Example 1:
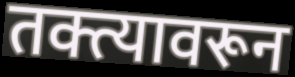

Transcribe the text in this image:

तक्त्यावरून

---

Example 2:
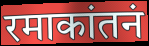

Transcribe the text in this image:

रमाकांतनं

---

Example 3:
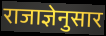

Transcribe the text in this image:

राजाज्ञेनुसार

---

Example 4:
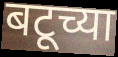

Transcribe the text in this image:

बटूच्या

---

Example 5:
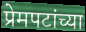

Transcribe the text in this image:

प्रेमपटांच्या